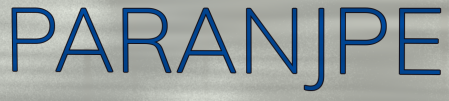
PARANJPE